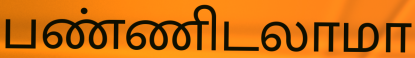
பண்ணிடலாமா